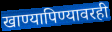
खाण्यापिण्यावरही